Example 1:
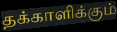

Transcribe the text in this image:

தக்காளிக்கும்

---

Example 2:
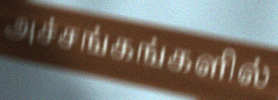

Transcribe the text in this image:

அச்சங்கங்களில்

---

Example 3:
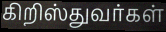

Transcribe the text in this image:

கிறிஸ்துவர்கள்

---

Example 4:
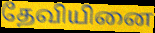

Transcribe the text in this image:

தேவியினை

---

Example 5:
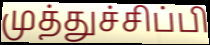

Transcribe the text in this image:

முத்துச்சிப்பி